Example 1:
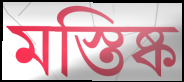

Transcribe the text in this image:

মস্তিষ্ক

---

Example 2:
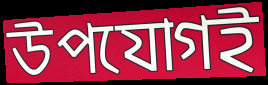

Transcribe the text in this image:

উপযোগই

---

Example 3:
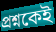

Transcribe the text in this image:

প্রশ্নকেই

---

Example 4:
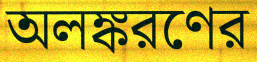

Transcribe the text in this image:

অলঙ্করণের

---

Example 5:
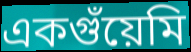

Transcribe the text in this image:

একগুঁয়েমি